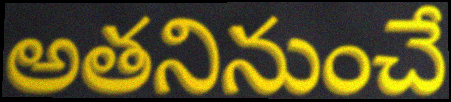
అతనినుంచే